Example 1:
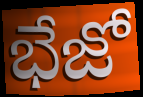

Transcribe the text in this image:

భేజో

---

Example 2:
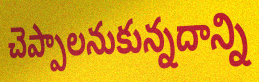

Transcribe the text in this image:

చెప్పాలనుకున్నదాన్ని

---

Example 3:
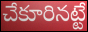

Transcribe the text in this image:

చేకూరినట్టే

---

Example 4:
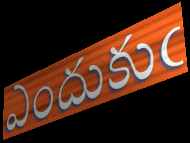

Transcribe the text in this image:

ఎందుకుఁ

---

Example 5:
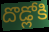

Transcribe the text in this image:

దొడ్లోకి